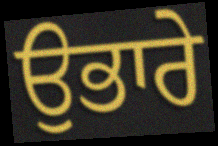
ਉਭਾਰੇ